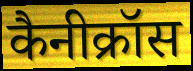
कैनीक्रॉस